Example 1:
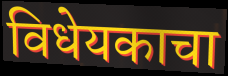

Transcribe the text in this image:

विधेयकाचा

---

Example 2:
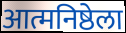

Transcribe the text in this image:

आत्मनिष्ठेला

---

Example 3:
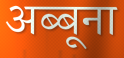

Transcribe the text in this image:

अब्बूना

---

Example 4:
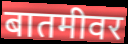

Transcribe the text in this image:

बातमीवर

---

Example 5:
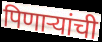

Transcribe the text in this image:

पिणाऱ्यांची